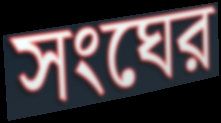
সংঘের